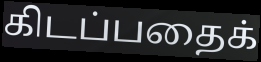
கிடப்பதைக்